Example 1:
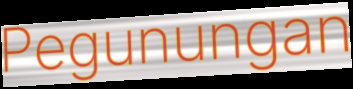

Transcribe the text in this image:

Pegunungan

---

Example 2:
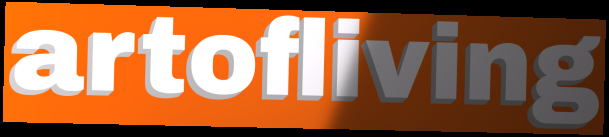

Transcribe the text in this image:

artofliving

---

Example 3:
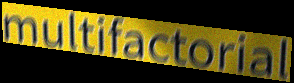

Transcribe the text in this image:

multifactorial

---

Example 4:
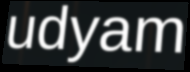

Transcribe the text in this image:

udyam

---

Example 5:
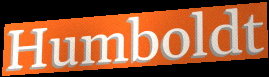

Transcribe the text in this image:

Humboldt